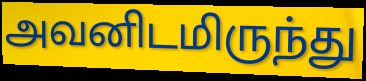
அவனிடமிருந்து